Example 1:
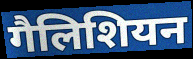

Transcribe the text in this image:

गैलिशियन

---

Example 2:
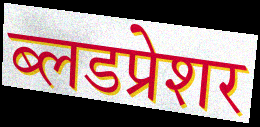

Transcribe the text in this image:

ब्लडप्रेशर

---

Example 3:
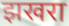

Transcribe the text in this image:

झखरा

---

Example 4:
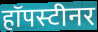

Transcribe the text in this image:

हॉपस्टीनर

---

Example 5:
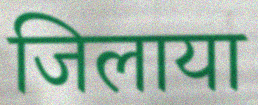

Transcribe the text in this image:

जिलाया